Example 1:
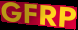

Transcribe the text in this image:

GFRP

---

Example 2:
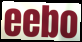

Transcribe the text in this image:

eebo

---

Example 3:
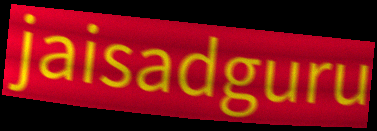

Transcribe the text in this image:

jaisadguru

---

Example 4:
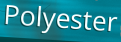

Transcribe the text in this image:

Polyester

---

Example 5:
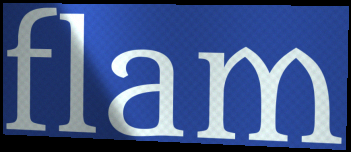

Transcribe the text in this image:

flam